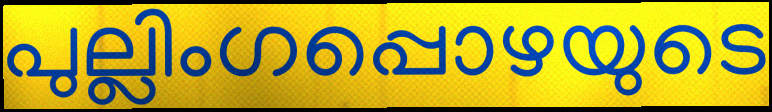
പുല്ലിംഗപ്പൊഴയുടെ